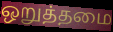
ஒறுத்தமை